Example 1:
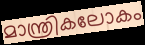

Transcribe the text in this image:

മാന്ത്രികലോകം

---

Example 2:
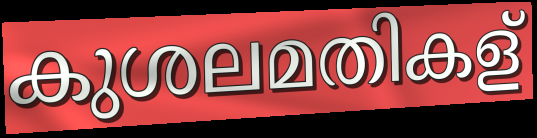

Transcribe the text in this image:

കുശലമതികള്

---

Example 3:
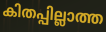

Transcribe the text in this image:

കിതപ്പില്ലാത്ത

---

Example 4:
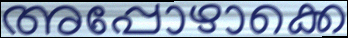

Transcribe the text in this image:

അപ്പോഴാക്കെ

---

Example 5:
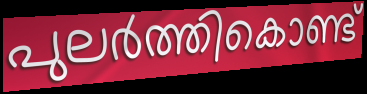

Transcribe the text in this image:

പുലർത്തികൊണ്ട്